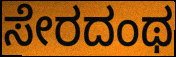
ಸೇರದಂಥ